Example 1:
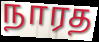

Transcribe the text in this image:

நாரத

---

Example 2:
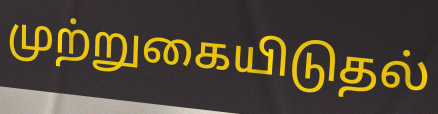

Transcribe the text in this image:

முற்றுகையிடுதல்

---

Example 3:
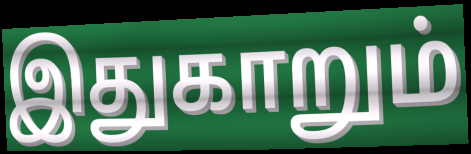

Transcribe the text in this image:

இதுகாறும்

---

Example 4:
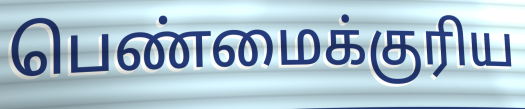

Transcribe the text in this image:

பெண்மைக்குரிய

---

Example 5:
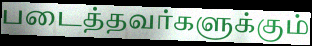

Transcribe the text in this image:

படைத்தவர்களுக்கும்